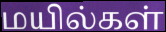
மயில்கள்